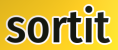
sortit